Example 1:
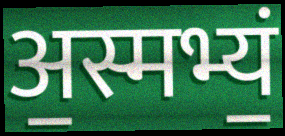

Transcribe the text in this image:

अ॒स्मभ्यं॒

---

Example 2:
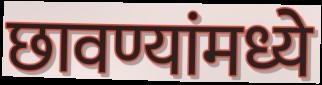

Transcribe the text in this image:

छावण्यांमध्ये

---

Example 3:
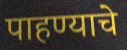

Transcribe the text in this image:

पाहण्याचे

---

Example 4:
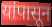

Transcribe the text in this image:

यांपासून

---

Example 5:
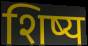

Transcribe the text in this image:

शिष्य